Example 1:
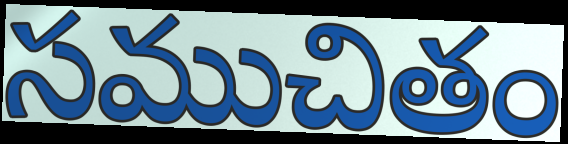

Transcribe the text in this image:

సముచితం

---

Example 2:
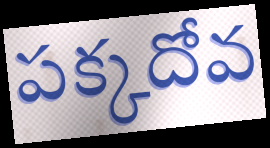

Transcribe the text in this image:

పక్కదోవ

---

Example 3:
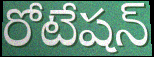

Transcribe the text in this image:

రోటేషన్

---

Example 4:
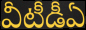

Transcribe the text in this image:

వీటీడీఏ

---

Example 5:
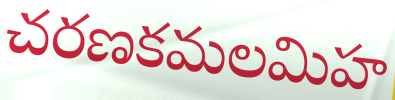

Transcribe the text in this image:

చరణకమలమిహ